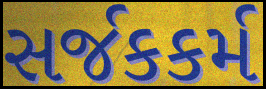
સર્જકકર્મ